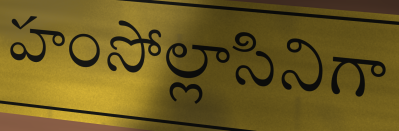
హంసోల్లాసినిగా